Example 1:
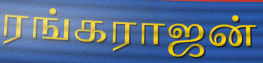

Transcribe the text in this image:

ரங்கராஜன்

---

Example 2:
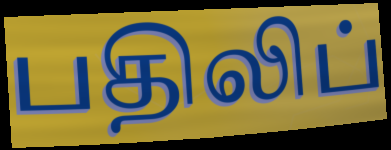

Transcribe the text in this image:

பதிலிப்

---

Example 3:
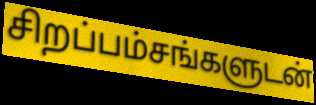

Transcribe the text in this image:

சிறப்பம்சங்களுடன்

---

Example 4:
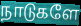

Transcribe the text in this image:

நாடுகளே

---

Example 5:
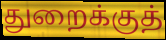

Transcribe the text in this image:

துறைக்குத்